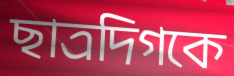
ছাত্রদিগকে